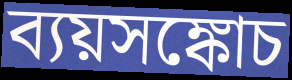
ব্যয়সঙ্কোচ